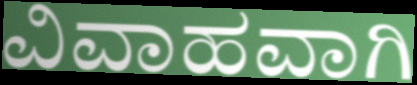
ವಿವಾಹವಾಗಿ